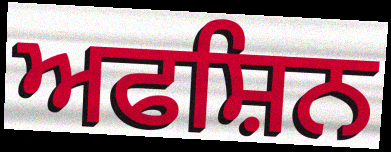
ਅਫਸ਼ਿਨ